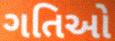
ગતિઓ